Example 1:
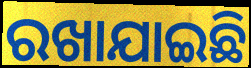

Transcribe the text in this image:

ରଖାଯାଇଛି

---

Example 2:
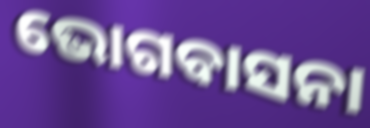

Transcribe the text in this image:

ଭୋଗବାସନା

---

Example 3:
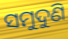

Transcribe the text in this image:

ସମୁଦୁଣି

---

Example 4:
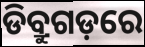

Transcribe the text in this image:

ଡିବ୍ରୁଗଡ଼ରେ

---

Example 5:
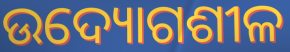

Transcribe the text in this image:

ଉଦ୍ୟୋଗଶୀଳ